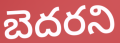
బెదరని